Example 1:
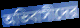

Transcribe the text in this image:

অভিবাসীদের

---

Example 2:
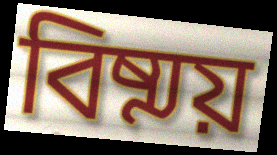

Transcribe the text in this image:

বিষ্ময়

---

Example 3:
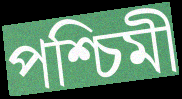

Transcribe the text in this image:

পশ্চিমী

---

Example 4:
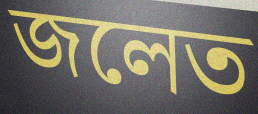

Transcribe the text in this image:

জলেত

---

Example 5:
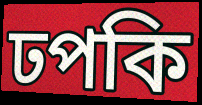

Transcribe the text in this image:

ঢপকি